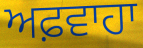
ਅਫ਼ਵਾਹਾ